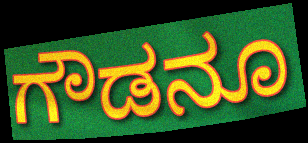
ಗೌಡನೂ